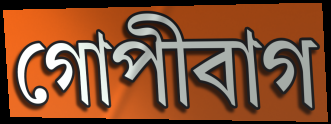
গোপীবাগ